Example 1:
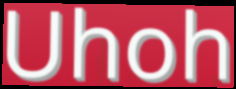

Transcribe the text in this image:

Uhoh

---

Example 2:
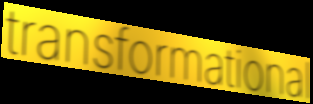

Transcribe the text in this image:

transformational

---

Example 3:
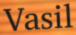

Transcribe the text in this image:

Vasil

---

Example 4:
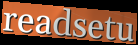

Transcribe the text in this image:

readsetu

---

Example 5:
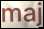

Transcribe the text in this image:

maj